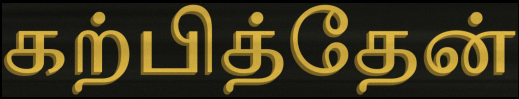
கற்பித்தேன்